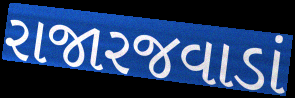
રાજારજવાડાં